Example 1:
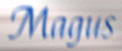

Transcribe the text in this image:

Magus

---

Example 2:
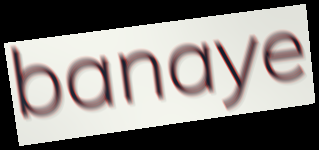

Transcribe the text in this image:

banaye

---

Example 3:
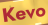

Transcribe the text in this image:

Kevo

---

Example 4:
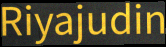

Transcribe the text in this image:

Riyajudin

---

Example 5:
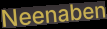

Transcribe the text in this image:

Neenaben